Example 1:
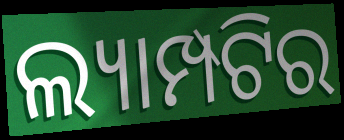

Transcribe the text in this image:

ଲ୍ୟାମ୍ପଟିର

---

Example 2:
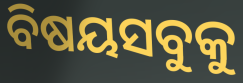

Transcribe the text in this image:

ବିଷୟସବୁକୁ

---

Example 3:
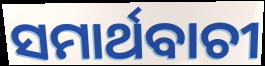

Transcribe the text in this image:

ସମାର୍ଥବାଚୀ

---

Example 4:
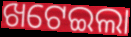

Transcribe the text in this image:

ଖଟେଇଲା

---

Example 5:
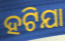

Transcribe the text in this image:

ହଟିଯା